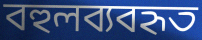
বহুলব্যবহৃত